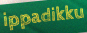
ippadikku